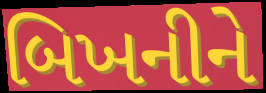
બિખનીને